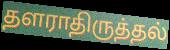
தளராதிருத்தல்